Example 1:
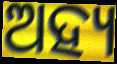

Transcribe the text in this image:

ଅହ୍ୟ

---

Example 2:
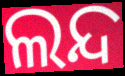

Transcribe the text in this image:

ଲନ୍ଦ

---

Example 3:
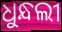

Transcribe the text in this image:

ଧୁନ୍ଧଲୀ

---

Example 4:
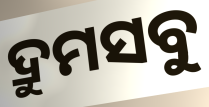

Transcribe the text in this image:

ଦ୍ରୁମସବୁ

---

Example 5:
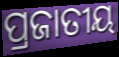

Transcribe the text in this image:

ପ୍ରଜାତୀୟ